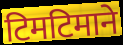
टिमटिमाने